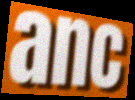
anc